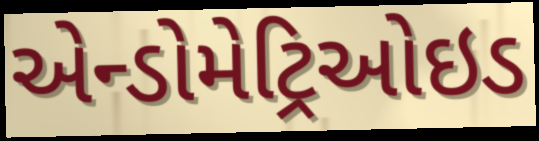
એન્ડોમેટ્રિઓઇડ